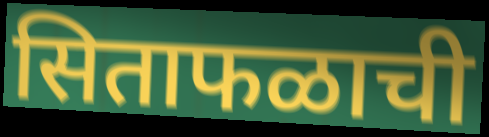
सिताफळाची